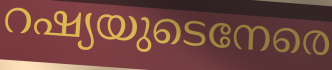
റഷ്യയുടെനേരെ